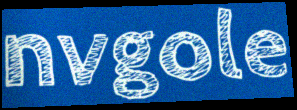
nvgole